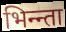
भिन्न्ता